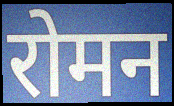
रोमन